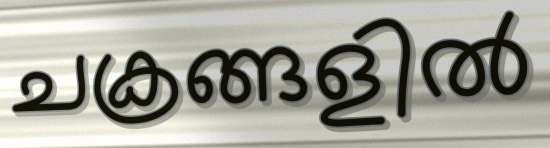
ചക്രങ്ങളിൽ